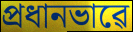
প্ৰধানভাৱে